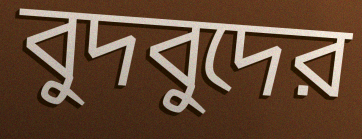
বুদবুদের